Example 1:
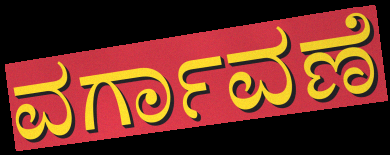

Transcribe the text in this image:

ವರ್ಗಾವಣೆ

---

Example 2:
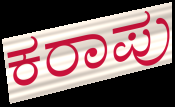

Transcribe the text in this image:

ಕರಾಪು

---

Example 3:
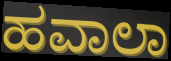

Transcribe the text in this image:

ಹವಾಲಾ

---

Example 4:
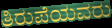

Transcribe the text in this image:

ತಿರುಪೆಯವರು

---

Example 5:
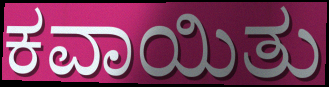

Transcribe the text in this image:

ಕವಾಯಿತು